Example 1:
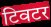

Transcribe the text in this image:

टिवटर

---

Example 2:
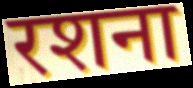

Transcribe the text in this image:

रशना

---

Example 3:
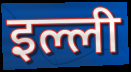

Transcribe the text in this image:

इल्ली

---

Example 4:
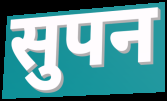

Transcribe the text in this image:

सुपन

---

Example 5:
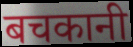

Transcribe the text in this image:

बचकानी